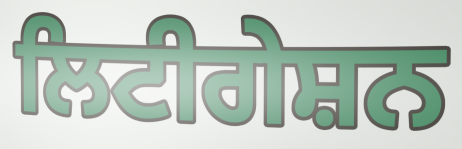
ਲਿਟੀਗੇਸ਼ਨ